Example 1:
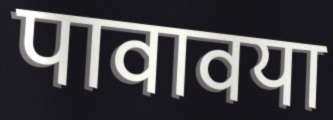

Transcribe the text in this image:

पावावया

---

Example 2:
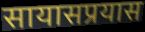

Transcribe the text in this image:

सायासप्रयास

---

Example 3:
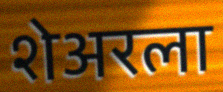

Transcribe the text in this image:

शेअरला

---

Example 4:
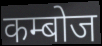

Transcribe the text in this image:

कम्बोज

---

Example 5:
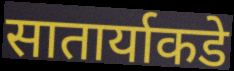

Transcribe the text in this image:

सातार्याकडे